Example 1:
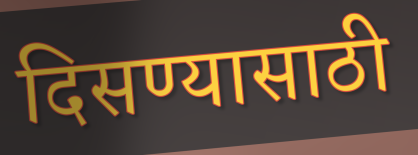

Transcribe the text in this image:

दिसण्यासाठी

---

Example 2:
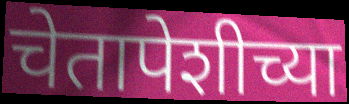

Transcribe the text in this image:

चेतापेशीच्या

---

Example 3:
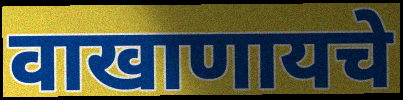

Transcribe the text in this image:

वाखाणायचे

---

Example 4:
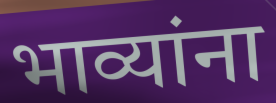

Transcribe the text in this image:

भाव्यांना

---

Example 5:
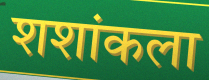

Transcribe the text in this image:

शशांकला